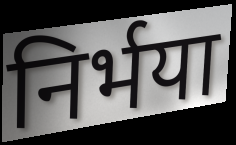
निर्भया